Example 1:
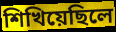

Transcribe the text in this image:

শিখিয়েছিলে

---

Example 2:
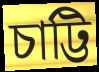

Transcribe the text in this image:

চাট্টি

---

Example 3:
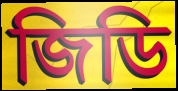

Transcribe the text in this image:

জিডি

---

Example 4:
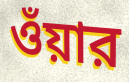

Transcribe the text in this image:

ওঁয়ার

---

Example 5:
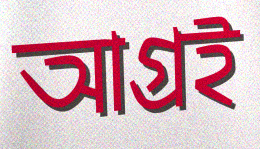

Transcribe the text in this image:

আগ্রই